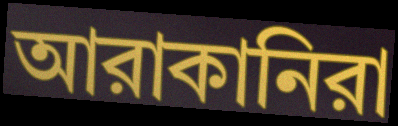
আরাকানিরা